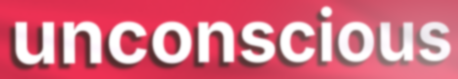
unconscious